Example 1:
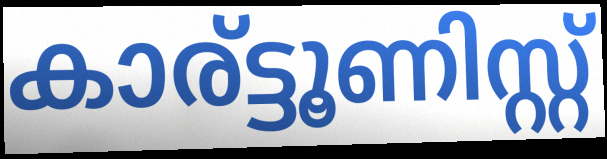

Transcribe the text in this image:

കാര്ട്ടൂണിസ്റ്റ്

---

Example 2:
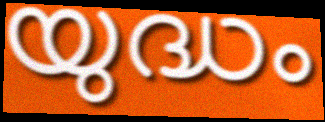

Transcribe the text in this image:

യുദ്ധം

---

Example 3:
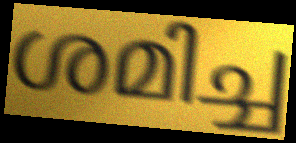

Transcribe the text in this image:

ശമിച്ച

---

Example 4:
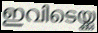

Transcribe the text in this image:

ഇവിടെയ്ക്കു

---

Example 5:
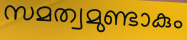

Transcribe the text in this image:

സമത്വമുണ്ടാകും